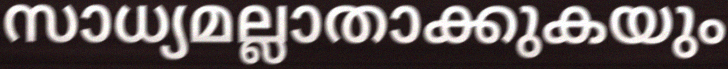
സാധ്യമല്ലാതാക്കുകയും